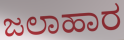
ಜಲಾಹಾರ